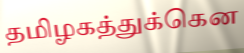
தமிழகத்துக்கென